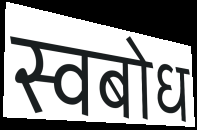
स्वबोध